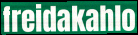
freidakahlo